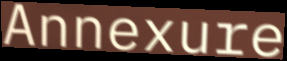
Annexure